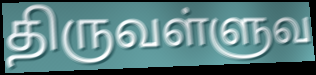
திருவள்ளுவ